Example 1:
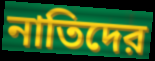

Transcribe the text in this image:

নাতিদের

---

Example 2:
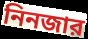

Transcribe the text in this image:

নিনজার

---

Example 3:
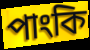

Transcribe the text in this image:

পাংকি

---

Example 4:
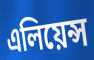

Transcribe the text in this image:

এলিয়েন্স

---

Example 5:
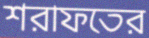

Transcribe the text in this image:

শরাফতের